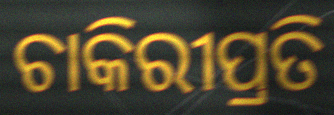
ଚାକିରୀପ୍ରତି